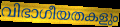
വിഭാഗീയതകളും